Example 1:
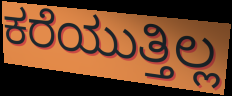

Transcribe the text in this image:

ಕರೆಯುತ್ತಿಲ್ಲ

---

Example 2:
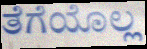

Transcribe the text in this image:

ತೆಗೆಯೊಲ್ಲ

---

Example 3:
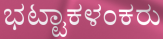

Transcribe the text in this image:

ಭಟ್ಟಾಕಳಂಕರು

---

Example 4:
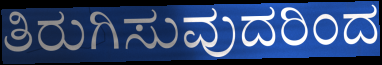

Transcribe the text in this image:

ತಿರುಗಿಸುವುದರಿಂದ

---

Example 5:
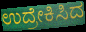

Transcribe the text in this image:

ಉದ್ರೇಕಿಸಿದ